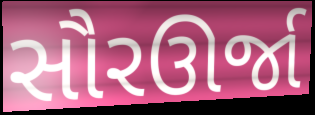
સૌરઊર્જા